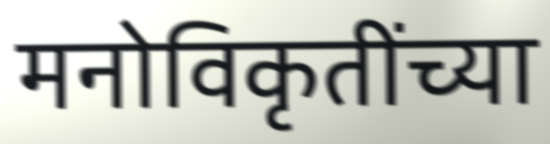
मनोविकृतींच्या